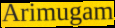
Arimugam